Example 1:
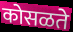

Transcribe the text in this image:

कोसळते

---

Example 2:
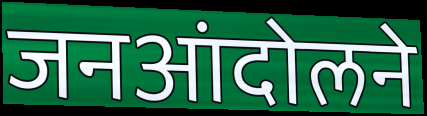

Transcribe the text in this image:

जनआंदोलने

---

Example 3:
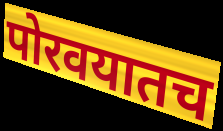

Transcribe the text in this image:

पोरवयातच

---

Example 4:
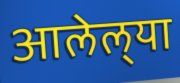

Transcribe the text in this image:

आलेल्या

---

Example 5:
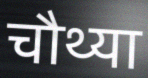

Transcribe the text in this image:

चौथ्या